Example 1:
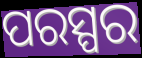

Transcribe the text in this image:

ପରସ୍ପର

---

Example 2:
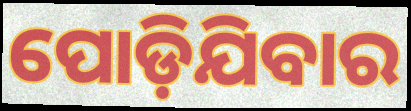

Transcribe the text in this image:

ପୋଡ଼ିଯିବାର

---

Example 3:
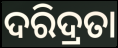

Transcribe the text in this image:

ଦରିଦ୍ରତା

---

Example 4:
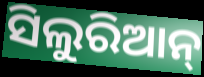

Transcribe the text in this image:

ସିଲୁରିଆନ୍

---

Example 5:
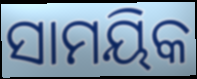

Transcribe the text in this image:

ସାମୟିକ